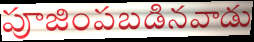
పూజింపబడినవాడు